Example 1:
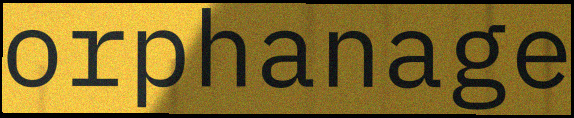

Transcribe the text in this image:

orphanage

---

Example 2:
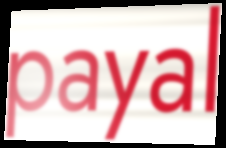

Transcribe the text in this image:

payal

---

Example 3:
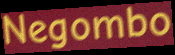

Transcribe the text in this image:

Negombo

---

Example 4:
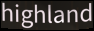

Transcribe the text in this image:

highland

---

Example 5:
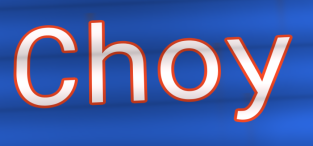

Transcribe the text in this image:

Choy